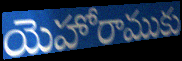
యెహోరాముకు